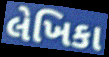
લેખિકા